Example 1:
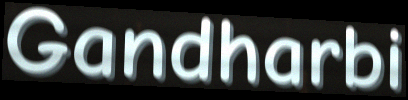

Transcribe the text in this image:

Gandharbi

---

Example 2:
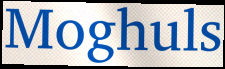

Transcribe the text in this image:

Moghuls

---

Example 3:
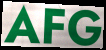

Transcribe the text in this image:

AFG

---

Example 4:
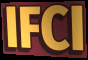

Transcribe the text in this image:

IFCI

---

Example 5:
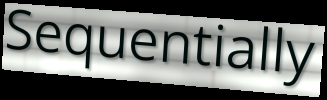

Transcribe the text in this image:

Sequentially